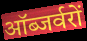
ऑब्जर्वरों